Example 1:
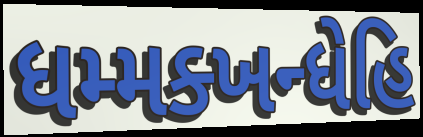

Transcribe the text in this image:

ધમ્મક્ખન્ધેહિ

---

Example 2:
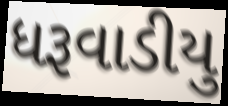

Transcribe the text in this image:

ધરૂવાડીયુ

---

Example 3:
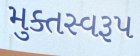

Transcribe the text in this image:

મુક્તસ્વરૂપ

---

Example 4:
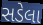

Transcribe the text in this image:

સડેલા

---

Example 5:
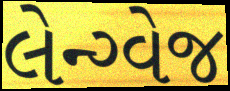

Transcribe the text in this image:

લેન્ગ્વેજ